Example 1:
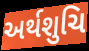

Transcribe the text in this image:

અર્થશુચિ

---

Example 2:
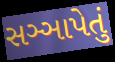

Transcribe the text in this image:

સઞ્ઞાપેતું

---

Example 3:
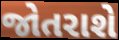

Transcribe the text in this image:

જોતરાશે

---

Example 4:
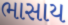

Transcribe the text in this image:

ભાસાય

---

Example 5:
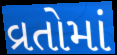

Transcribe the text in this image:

વ્રતોમાં